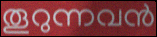
തൂറുന്നവൻ